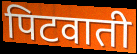
पिटवाती